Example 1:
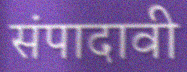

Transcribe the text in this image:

संपादावी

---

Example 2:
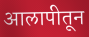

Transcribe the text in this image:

आलापीतून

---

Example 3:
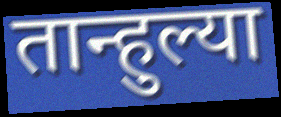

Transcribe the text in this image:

तान्हुल्या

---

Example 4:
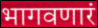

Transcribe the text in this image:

भागवणारं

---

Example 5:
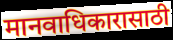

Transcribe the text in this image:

मानवाधिकारासाठी